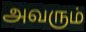
அவரும்